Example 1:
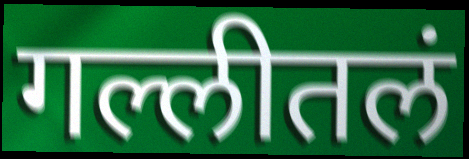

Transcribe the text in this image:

गल्लीतलं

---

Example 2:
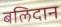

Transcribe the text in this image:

बलिदान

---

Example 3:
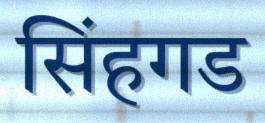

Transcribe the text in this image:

सिंहगड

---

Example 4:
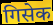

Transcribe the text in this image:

गिसेक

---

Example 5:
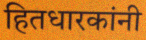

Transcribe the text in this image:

हितधारकांनी